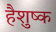
हैशुष्क